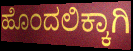
ಹೊಂದಲಿಕ್ಕಾಗಿ